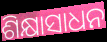
ଶିକ୍ଷାସାଧନ